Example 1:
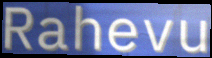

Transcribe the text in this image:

Rahevu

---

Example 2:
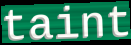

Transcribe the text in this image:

taint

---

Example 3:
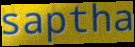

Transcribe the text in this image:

saptha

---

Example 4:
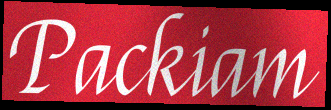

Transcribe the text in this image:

Packiam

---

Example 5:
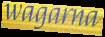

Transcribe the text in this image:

wagarna